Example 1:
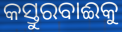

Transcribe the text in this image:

କସ୍ତୁରବାଈକୁ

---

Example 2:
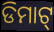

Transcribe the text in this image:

ଡିମାଟ୍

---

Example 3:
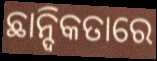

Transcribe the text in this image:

ଛାନ୍ଦିକତାରେ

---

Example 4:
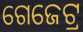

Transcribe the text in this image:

ଗେଜେଟ୍ର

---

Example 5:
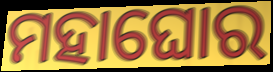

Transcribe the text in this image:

ମହାଘୋର